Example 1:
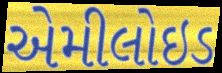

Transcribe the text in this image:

એમીલોઇડ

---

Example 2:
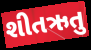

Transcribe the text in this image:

શીતઋતુ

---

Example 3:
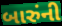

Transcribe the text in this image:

બારુંની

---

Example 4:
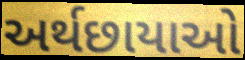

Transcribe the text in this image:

અર્થછાયાઓ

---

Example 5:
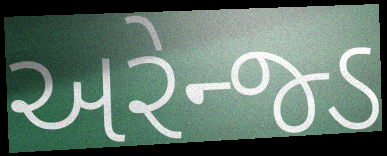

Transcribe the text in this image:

અરેન્જ્ડ